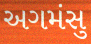
અગમંસુ